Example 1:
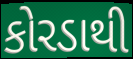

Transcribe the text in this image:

કોરડાથી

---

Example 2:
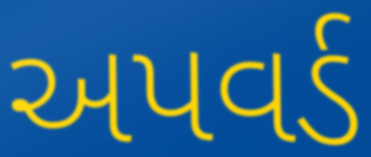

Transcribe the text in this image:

અપવર્ડ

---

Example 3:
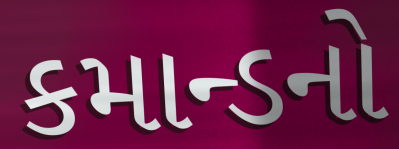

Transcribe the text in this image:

કમાન્ડનો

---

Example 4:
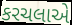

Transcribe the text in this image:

કરચલાએ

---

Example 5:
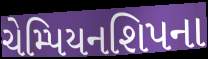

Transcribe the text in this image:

ચેમ્પિયનશિપના